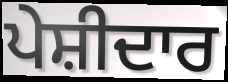
ਪੇਸ਼ੀਦਾਰ